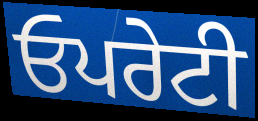
ਓਪਰੇਟੀ